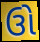
ઉો